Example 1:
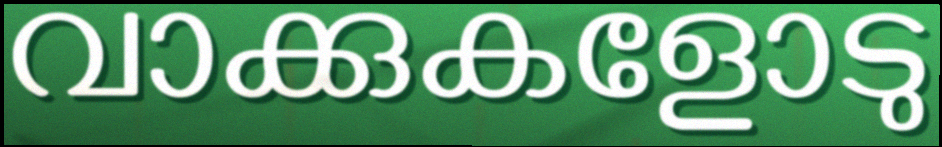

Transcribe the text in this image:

വാക്കുകളോടു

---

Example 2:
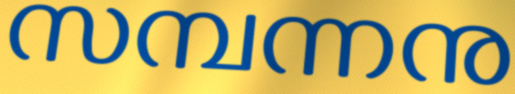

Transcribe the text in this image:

സമ്പന്നനു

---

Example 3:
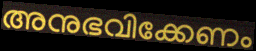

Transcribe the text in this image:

അനുഭവിക്കേണം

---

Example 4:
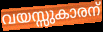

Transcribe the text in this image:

വയസ്സുകാരന്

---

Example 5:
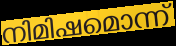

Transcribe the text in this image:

നിമിഷമൊന്ന്